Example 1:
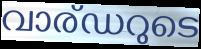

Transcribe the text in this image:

വാര്ഡറുടെ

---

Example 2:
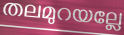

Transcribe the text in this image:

തലമുറയല്ലേ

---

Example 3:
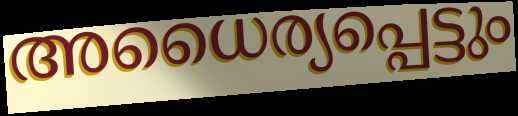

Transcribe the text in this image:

അധൈര്യപ്പെട്ടും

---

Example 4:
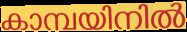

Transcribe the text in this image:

കാമ്പയിനിൽ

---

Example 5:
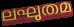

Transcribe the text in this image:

ലഘുതമ